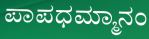
ಪಾಪಧಮ್ಮಾನಂ